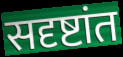
सदृष्टांत